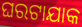
ଘରଟାଯାକ